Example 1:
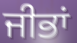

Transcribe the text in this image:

ਜੀਭਾਂ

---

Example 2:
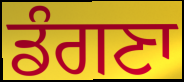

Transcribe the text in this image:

ਡੰਗਣਾ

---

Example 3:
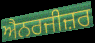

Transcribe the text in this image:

ਐਨਰਜੀਜ਼ਰ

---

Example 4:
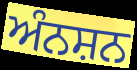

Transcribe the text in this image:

ਅੰਨਸ਼ਨ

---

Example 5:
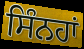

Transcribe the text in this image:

ਸਿੰਨਹਾਂ